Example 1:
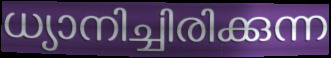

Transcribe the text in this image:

ധ്യാനിച്ചിരിക്കുന്ന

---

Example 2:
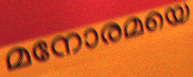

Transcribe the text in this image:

മനോരമയെ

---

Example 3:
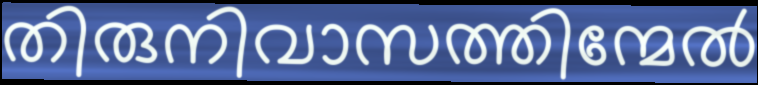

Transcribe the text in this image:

തിരുനിവാസത്തിന്മേൽ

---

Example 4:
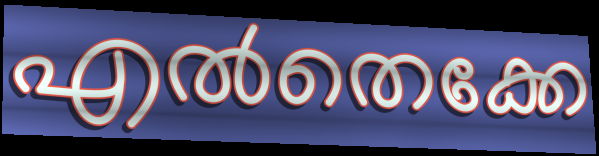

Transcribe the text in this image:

എൽതെക്കേ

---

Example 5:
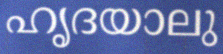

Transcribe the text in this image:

ഹൃദയാലു